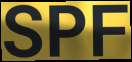
SPF